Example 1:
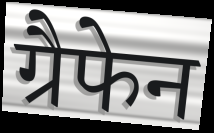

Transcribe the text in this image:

ग्रैफेन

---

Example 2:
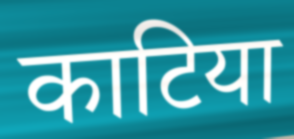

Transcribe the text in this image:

काटिया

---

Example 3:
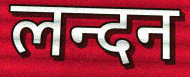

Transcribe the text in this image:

लन्दन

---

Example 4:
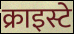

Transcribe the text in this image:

क्राइस्टे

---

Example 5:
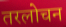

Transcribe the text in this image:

तरलोचन